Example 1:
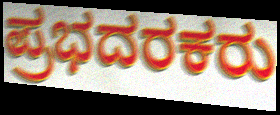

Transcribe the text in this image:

ಪ್ರಭದರಕರು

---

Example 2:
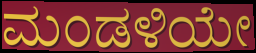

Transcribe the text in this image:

ಮಂಡಳಿಯೇ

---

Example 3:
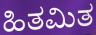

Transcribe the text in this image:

ಹಿತಮಿತ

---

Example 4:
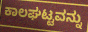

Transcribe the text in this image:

ಕಾಲಘಟ್ಟವನ್ನು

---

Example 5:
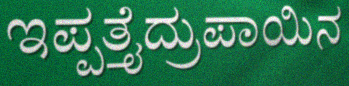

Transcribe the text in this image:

ಇಪ್ಪತ್ತೈದ್ರುಪಾಯಿನ